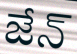
జేన్